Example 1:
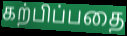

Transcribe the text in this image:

கற்பிப்பதை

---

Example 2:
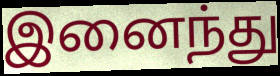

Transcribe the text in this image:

இனைந்து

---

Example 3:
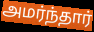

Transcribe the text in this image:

அமர்ந்தார்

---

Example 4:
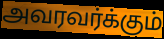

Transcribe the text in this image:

அவரவர்க்கும்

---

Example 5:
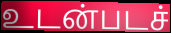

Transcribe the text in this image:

உடன்படச்